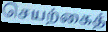
செயற்கைத்